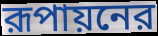
রূপায়নের